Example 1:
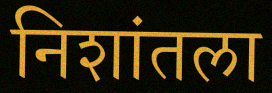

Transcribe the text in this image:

निशांतला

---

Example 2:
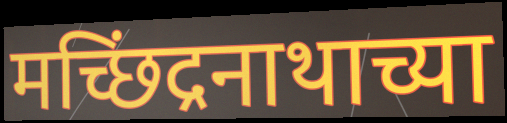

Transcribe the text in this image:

मच्छिंद्रनाथाच्या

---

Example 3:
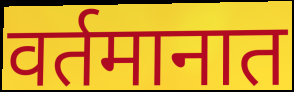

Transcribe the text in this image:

वर्तमानात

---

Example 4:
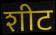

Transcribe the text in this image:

शीट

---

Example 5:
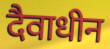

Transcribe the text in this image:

दैवाधीन